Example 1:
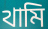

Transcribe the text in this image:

থামি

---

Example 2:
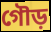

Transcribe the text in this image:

গৌড়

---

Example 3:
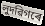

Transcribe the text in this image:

লুদৱিগৰে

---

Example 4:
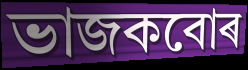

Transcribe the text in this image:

ভাজকবোৰ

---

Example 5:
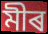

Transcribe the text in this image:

মীৰ